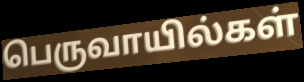
பெருவாயில்கள்